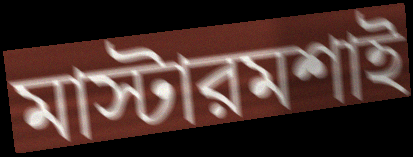
মাস্টারমশাই